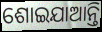
ଶୋଇଯାଆନ୍ତି